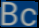
Bc